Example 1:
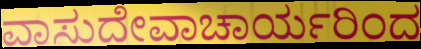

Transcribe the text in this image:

ವಾಸುದೇವಾಚಾರ್ಯರಿಂದ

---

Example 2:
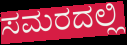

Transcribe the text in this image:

ಸಮರದಲ್ಲಿ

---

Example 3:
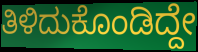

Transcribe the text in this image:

ತಿಳಿದುಕೊಂಡಿದ್ದೇ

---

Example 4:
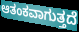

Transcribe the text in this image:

ಆತಂಕವಾಗುತ್ತದೆ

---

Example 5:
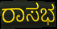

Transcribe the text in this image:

ರಾಸಭ